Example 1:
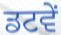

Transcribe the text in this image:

ਡਟਵੇਂ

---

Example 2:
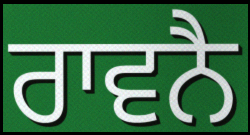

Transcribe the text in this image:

ਰਾਵਨੈ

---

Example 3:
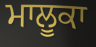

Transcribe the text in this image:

ਮਾਲੂਕਾ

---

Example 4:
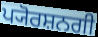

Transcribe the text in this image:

ਪ੍ਯੋਰਸ਼ਨਗੀ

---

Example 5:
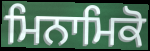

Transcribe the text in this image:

ਮਿਨਾਮਿਕੋ